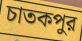
চাতকপুর